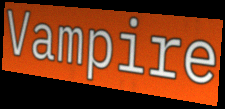
Vampire